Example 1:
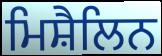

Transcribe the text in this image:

ਮਿਸ਼ੈਲਿਨ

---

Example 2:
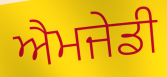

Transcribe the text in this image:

ਐਮਜੇਡੀ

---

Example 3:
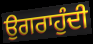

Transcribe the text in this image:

ਉਗਰਾਹੁੰਦੀ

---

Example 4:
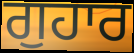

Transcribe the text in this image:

ਗੁਹਾਰ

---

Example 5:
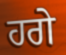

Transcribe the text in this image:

ਹਗੇ